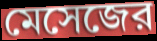
মেসেজের